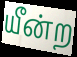
யீன்ற